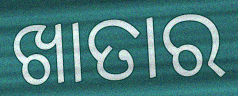
ଖାତାର